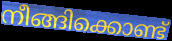
നീങ്ങിക്കൊണ്ട്